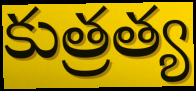
కుత్రత్య